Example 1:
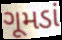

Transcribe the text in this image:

ગૂમડાં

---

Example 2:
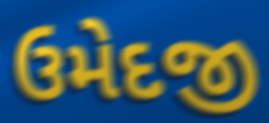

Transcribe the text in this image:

ઉમેદજી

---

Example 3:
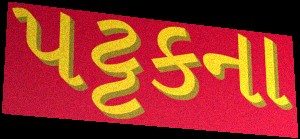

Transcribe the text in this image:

પટ્ટકના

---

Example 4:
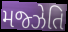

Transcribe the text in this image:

મજ્ઝેતિ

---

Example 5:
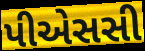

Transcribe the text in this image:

પીએસસી